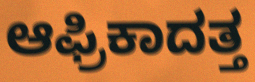
ಆಫ್ರಿಕಾದತ್ತ